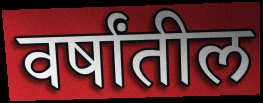
वर्षांतील